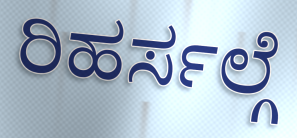
ರಿಹರ್ಸಲ್ಗೆ